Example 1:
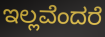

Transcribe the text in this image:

ಇಲ್ಲವೆಂದರೆ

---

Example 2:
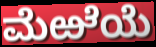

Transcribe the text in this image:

ಮೆಱೆಯೆ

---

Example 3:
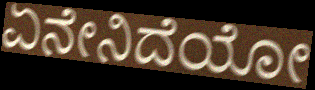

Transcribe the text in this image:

ಏನೇನಿದೆಯೋ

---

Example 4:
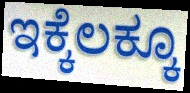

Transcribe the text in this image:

ಇಕ್ಕೆಲಕ್ಕೂ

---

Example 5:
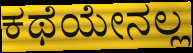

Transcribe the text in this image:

ಕಥೆಯೇನಲ್ಲ